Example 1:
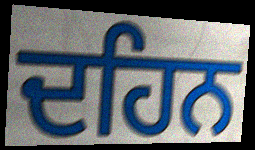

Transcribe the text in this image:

ਦਹਿਨ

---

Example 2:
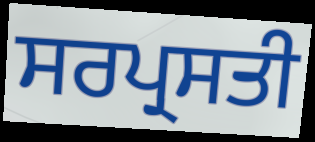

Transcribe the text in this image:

ਸਰਪ੍ਰਸਤੀ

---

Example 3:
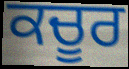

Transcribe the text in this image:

ਕਚੂਰ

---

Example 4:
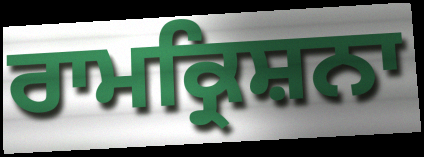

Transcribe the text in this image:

ਰਾਮਕ੍ਰਿਸ਼ਨਾ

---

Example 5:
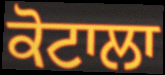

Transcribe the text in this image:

ਕੋਟਾਲਾ